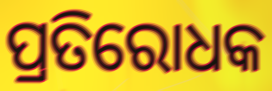
ପ୍ରତିରୋଧକ